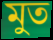
মুত